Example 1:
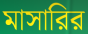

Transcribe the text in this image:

মাসারির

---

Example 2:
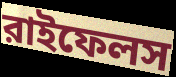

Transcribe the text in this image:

রাইফেলস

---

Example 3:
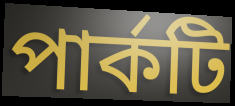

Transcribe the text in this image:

পার্কটি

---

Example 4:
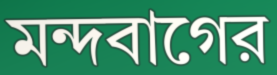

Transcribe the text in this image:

মন্দবাগের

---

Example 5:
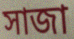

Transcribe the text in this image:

সাজা